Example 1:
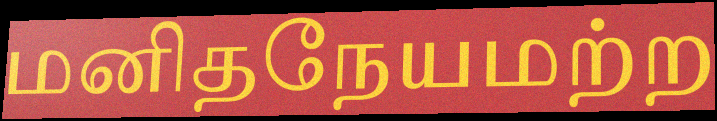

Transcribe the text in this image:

மனிதநேயமற்ற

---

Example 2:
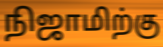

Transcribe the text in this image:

நிஜாமிற்கு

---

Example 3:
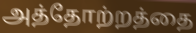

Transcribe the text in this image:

அத்தோற்றத்தை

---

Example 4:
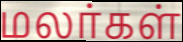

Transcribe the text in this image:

மலர்கள்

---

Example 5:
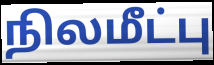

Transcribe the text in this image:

நிலமீட்பு